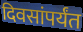
दिवसांपर्यंत